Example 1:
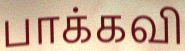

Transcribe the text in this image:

பாக்கவி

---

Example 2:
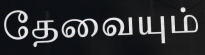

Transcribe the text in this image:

தேவையும்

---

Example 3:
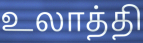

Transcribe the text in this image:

உலாத்தி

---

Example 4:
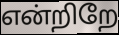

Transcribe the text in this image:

என்றிறே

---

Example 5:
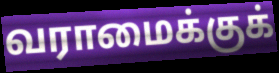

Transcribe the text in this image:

வராமைக்குக்